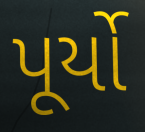
પૂર્યો